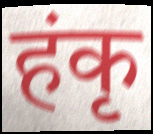
हंकृ